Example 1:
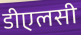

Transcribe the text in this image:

डीएलसी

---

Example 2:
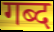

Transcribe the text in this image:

गब्द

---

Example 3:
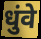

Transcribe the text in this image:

धुंवे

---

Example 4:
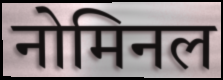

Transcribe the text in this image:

नोमिनल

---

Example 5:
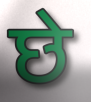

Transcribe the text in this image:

छे